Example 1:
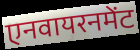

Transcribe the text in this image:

एनवायरनमेंट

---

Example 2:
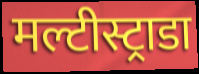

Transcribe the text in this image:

मल्टीस्ट्राडा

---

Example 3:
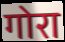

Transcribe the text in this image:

गोरा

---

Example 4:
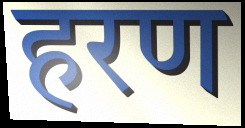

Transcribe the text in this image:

हरण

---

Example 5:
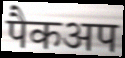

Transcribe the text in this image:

पैकअप